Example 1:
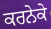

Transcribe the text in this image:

ਕਰਨੇਕੇ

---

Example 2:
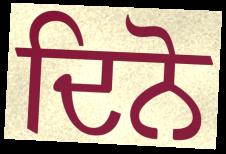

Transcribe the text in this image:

ਦਿਨੋ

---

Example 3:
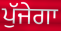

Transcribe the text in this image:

ਪੁੱਜੇਗਾ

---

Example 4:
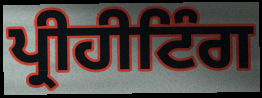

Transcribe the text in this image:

ਪ੍ਰੀਹੀਟਿੰਗ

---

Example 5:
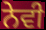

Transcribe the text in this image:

ਨੇਵੀ